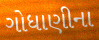
ગોધાણીના